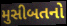
મુસીબતનો